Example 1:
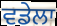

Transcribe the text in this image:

ਵਡੇਲਾ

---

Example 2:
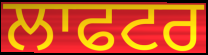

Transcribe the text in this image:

ਲਾਫਟਰ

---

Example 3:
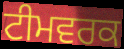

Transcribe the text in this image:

ਟੀਮਵਰਕ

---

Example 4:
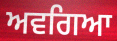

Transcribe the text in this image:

ਅਵਗਿਆ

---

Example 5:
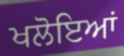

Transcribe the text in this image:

ਖਲੋਇਆਂ